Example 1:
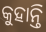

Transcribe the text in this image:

କୁହାନ୍ତି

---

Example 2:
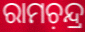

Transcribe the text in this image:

ରାମଚ଼ନ୍ଦ୍ର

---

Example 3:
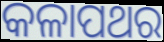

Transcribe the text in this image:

କଳାପଥର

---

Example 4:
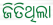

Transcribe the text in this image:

ଜିତିଥିଲା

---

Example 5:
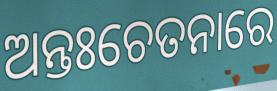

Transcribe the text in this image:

ଅନ୍ତଃଚେତନାରେ